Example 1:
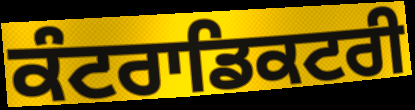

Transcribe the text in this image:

ਕੰਟਰਾਡਿਕਟਰੀ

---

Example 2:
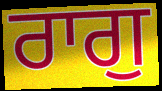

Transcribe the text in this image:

ਰਾਗੁ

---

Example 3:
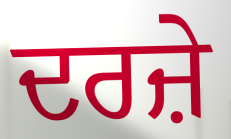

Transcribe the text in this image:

ਦਰਜ਼ੇ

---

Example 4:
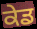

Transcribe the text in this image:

ਕੇਡ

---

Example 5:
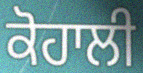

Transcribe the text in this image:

ਕੋਹਾਲੀ